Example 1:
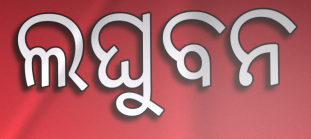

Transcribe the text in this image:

ଲଘୁବନ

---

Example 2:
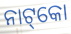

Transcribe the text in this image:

ନାଟ୍‌କୋ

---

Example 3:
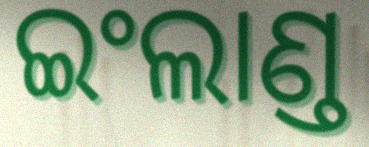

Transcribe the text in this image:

ଇଂଲାଣ୍ଡ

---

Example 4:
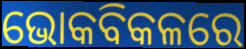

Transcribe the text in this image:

ଭୋକବିକଳରେ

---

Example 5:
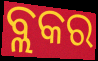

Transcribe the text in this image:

ବ୍ଲକର